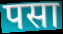
पसा